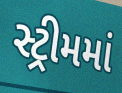
સ્ટ્રીમમાં